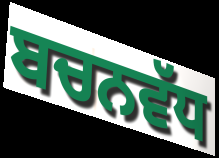
ਬਚਨਵੱਧ